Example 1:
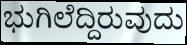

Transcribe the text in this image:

ಭುಗಿಲೆದ್ದಿರುವುದು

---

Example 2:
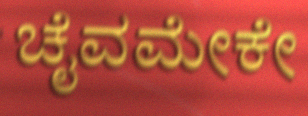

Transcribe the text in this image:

ಚೈವಮೇಕೇ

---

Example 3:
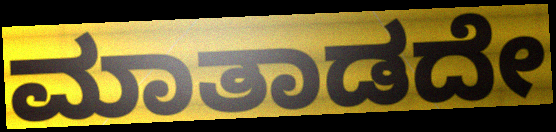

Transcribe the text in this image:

ಮಾತಾಡದೇ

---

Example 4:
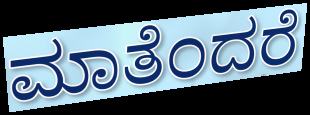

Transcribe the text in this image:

ಮಾತೆಂದರೆ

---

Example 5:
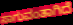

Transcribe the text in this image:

ಸಾಗುವಂತಾಗಿದೆ